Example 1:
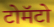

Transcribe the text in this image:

टोमॅटो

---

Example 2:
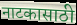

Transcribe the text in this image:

नाटकासाठी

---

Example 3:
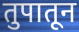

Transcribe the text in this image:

तुपातून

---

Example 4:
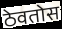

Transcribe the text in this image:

ठेवतोस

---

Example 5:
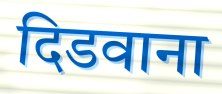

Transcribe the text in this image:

दिडवाना